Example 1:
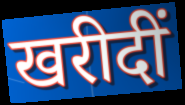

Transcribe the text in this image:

खरीदीं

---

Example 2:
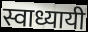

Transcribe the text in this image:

स्वाध्यायी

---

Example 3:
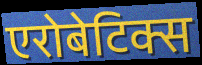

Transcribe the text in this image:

एरोबेटिक्स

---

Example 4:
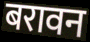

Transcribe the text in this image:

बरावन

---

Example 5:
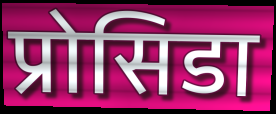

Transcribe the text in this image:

प्रोसिडा